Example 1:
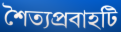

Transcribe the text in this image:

শৈত্যপ্রবাহটি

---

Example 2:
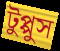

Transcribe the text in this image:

টুপ্পুস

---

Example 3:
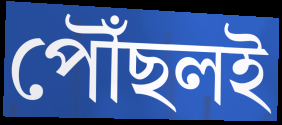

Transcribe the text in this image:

পৌঁছলই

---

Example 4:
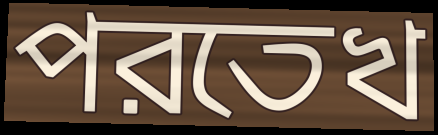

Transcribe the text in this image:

পরতেখ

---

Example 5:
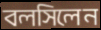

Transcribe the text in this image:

বলসিলেন